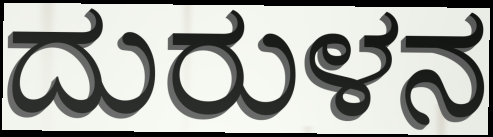
ದುರುಳನ